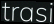
trasi